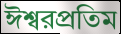
ঈশ্বরপ্রতিম